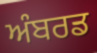
ਅੰਬਰਡ